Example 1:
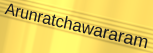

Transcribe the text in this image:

Arunratchawararam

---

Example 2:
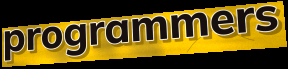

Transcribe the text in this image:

programmers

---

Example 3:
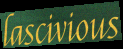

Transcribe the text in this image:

lascivious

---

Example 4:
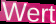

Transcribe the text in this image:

Wert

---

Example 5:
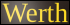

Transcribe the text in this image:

Werth